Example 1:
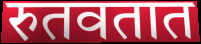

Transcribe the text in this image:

रुतवतात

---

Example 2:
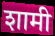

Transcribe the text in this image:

शामी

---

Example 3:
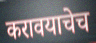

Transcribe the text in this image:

करावयाचेच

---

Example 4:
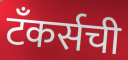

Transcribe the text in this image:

टँकर्सची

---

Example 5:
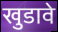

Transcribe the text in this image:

खुडावे